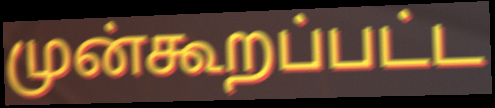
முன்கூறப்பட்ட